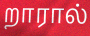
றாரால்